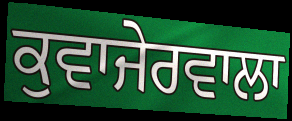
ਕੁਵਾਜੇਰਵਾਲਾ